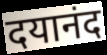
दयानंद